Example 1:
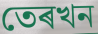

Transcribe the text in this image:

তেৰখন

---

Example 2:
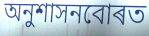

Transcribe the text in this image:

অনুশাসনবোৰত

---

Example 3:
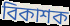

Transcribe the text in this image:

বিকাশক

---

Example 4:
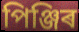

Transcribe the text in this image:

পিঞ্জিৰ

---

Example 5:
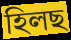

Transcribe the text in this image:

হিলছ